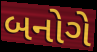
બનોગે